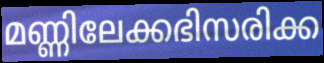
മണ്ണിലേക്കഭിസരിക്ക